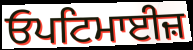
ਓਪਟਿਮਾਈਜ਼